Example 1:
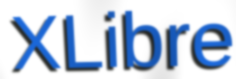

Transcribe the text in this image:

XLibre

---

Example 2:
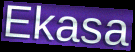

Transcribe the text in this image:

Ekasa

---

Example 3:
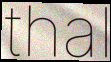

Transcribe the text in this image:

thal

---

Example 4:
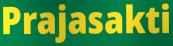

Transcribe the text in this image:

Prajasakti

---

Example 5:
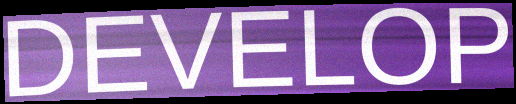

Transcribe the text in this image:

DEVELOP